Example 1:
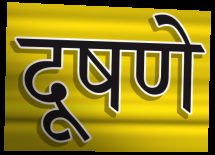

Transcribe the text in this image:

दूषणे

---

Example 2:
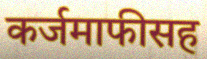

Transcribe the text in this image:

कर्जमाफीसह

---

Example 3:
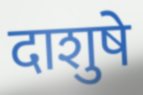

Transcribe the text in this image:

दाशुषे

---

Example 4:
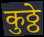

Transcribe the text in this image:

कुठ्ठे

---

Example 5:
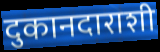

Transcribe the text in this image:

दुकानदाराशी